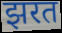
झरत